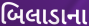
બિલાડાના